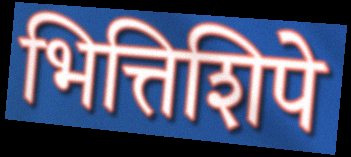
भित्तिशिपे